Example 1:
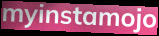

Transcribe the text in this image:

myinstamojo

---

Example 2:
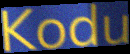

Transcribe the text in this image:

Kodu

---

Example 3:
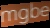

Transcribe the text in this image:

mgbe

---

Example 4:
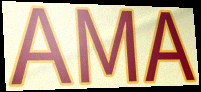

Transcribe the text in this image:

AMA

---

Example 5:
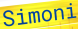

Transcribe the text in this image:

Simoni